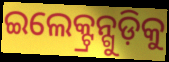
ଇଲେକ୍ଟ୍ରନ୍ଗୁଡ଼ିକୁ